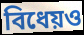
বিধেয়ও